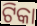
ଟିକା